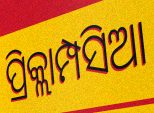
ପ୍ରିକ୍ଲାମ୍ପସିଆ